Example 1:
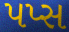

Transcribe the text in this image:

પપ્સ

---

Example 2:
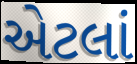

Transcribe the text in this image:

એટલાં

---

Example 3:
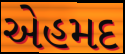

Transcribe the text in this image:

એહમદ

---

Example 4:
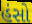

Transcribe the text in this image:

હંસો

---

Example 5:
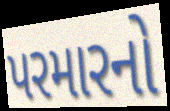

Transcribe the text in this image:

પરમારનો